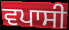
ਵਪਾਸੀ